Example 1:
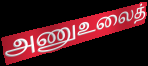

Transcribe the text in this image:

அணுஉலைத்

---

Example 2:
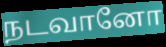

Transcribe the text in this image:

நடவானோ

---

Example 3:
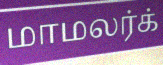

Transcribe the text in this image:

மாமலர்க்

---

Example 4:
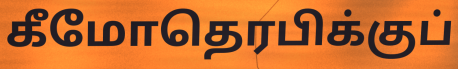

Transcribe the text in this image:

கீமோதெரபிக்குப்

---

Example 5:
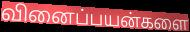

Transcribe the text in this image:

வினைப்பயன்களை